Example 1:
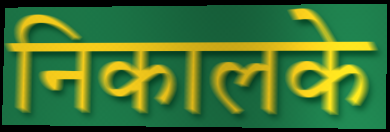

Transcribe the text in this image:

निकालके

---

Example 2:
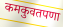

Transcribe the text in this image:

कमकुवतपणा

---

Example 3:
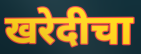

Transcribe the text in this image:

खरेदीचा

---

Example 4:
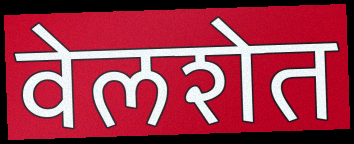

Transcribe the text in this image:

वेलशेत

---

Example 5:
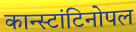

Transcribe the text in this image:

कान्स्टांटिनोपल